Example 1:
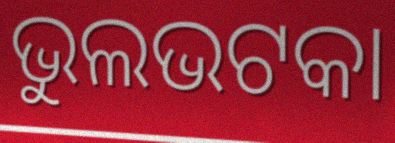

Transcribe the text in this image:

ଭୁଲଭଟକା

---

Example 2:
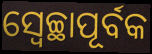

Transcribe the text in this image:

ସ୍ଵେଚ୍ଛାପୂର୍ବକ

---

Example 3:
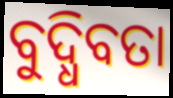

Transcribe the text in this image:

ବୁଦ୍ଧିବତା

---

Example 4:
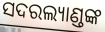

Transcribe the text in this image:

ସଦରଲ୍ୟାଣ୍ଡଙ୍କ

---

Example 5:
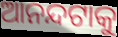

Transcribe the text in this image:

ଆନନ୍ଦଟାକୁ